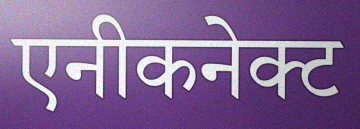
एनीकनेक्ट